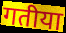
गतीया